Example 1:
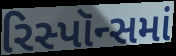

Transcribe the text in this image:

રિસ્પૉન્સમાં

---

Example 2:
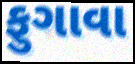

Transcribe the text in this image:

ફુગાવા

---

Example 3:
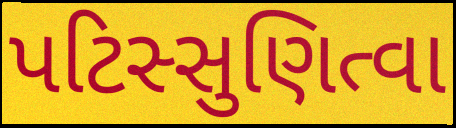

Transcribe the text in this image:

પટિસ્સુણિત્વા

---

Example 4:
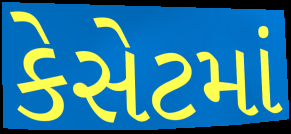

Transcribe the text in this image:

કેસેટમાં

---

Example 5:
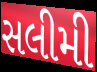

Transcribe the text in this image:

સલીમી